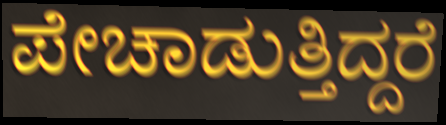
ಪೇಚಾಡುತ್ತಿದ್ದರೆ